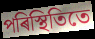
পৰিস্থিতিতে